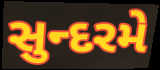
સુન્દરમે